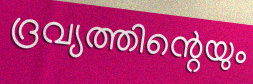
ദ്രവ്യത്തിന്റെയും